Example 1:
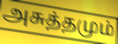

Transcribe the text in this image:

அசுத்தமும்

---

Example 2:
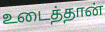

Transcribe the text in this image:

உடைத்தான்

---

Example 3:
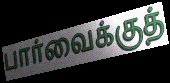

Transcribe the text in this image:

பார்வைக்குத்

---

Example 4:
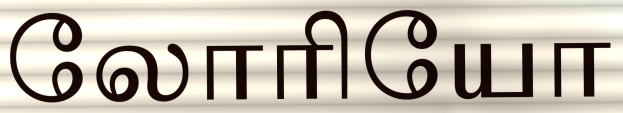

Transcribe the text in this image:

லோரியோ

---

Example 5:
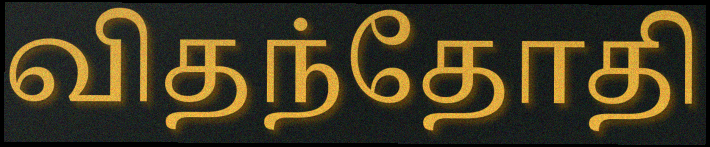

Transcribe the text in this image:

விதந்தோதி